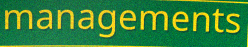
managements